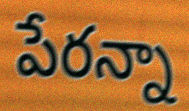
పేరన్నా